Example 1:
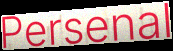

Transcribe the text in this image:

Persenal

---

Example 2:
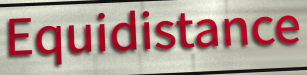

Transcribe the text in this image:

Equidistance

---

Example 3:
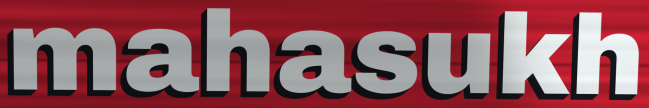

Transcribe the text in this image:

mahasukh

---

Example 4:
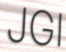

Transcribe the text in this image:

JGI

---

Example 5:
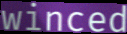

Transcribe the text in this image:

winced